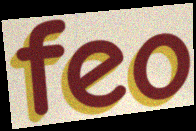
feo